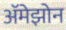
ॲमेझोन